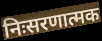
निःसरणात्मक